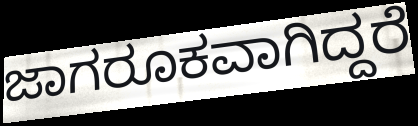
ಜಾಗರೂಕವಾಗಿದ್ದರೆ